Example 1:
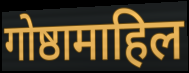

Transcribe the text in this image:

गोष्ठामाहिल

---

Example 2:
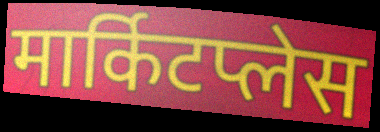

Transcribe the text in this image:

मार्किटप्लेस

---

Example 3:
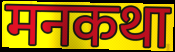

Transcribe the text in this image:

मनकथा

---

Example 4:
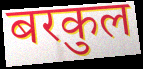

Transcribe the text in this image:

बरकुल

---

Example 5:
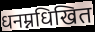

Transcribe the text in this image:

धनम्नधिखित